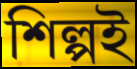
শিল্পই